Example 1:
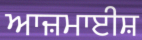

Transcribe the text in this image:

ਆਜ਼ਮਾਈਸ਼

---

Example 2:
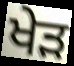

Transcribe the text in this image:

ਖੇੜ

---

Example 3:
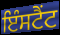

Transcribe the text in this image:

ਇੰਸਟੈਂਟ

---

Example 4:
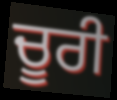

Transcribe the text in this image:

ਚੂਰੀ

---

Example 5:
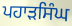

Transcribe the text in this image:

ਪਹਾੜਸਿੰਘ